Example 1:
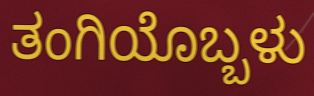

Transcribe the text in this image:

ತಂಗಿಯೊಬ್ಬಳು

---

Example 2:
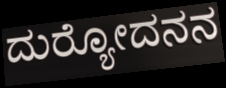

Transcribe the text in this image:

ದುರ್‍ಯೋದನನ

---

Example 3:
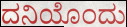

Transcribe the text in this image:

ದನಿಯೊಂದು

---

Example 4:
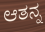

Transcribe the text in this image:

ಆತನ್ನ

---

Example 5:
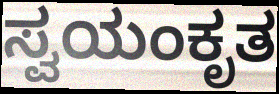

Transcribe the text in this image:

ಸ್ವಯಂಕೃತ